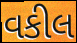
વકીલ